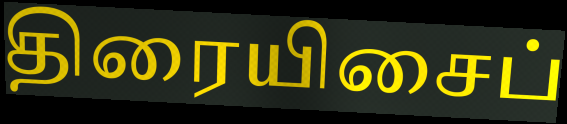
திரையிசைப்